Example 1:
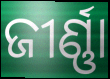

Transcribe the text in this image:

ଜୀର୍ଣ୍ଣା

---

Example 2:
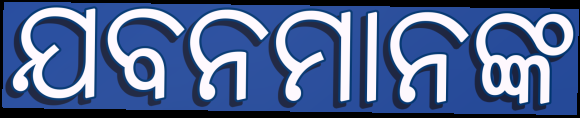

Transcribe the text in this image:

ଯବନମାନଙ୍କ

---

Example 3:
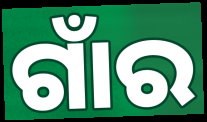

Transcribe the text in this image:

ଗାଁର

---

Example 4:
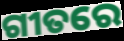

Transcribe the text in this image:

ଗୀତରେ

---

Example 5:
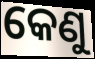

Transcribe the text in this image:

କେଣୁ